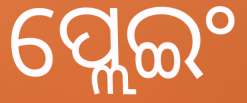
ପ୍ଲେଇଂ